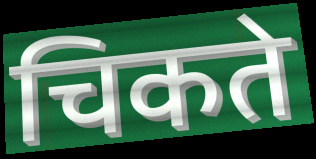
चिकते